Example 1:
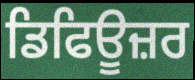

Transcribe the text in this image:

ਡਿਫਿਊਜ਼ਰ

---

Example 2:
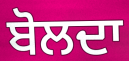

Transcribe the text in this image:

ਬੋਲਦਾ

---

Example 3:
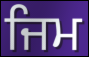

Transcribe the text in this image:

ਜਿਮ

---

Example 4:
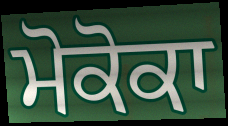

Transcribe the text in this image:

ਮੋਕੋਕਾ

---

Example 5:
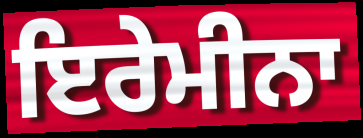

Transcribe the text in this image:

ਇਰੇਮੀਨਾ